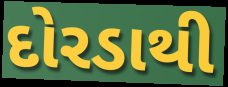
દોરડાથી